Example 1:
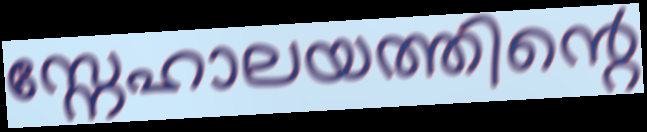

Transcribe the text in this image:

സ്നേഹാലയത്തിന്റെ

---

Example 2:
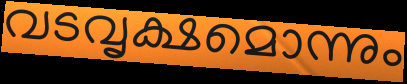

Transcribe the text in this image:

വടവൃക്ഷമൊന്നും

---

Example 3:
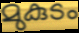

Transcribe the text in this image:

മുകുടം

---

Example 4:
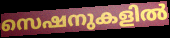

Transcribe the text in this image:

സെഷനുകളിൽ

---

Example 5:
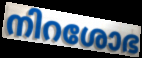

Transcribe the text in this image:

നിറശോഭ